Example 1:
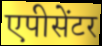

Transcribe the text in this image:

एपीसेंटर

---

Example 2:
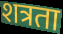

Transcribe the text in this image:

शत्रता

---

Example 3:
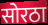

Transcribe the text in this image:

सोरठा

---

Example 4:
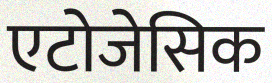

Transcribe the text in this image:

एटोजेसिक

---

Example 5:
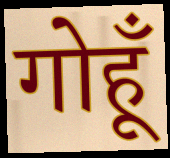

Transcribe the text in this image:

गोहूँ